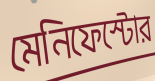
মেনিফেস্টোর